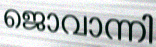
ജൊവാന്നി